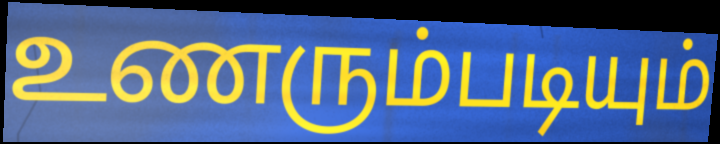
உணரும்படியும்